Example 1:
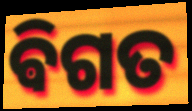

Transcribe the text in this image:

ଵିଗତ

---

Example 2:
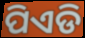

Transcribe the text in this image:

ପିଏଡି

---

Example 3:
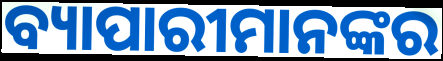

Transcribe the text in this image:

ବ୍ୟାପାରୀମାନଙ୍କର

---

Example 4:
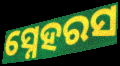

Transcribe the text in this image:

ସ୍ନେହରସ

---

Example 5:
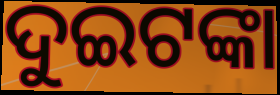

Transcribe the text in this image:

ଦୁଇଟଙ୍କା